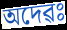
অদেৱঃ